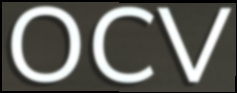
OCV